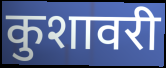
कुशावरी